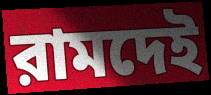
রামদেই